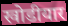
खोडीयार